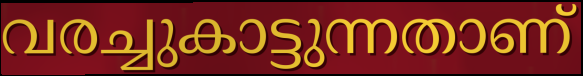
വരച്ചുകാട്ടുന്നതാണ്